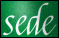
sede